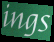
ings